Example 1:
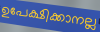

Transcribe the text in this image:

ഉപേക്ഷിക്കാനല്ല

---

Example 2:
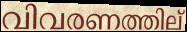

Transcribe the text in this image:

വിവരണത്തില്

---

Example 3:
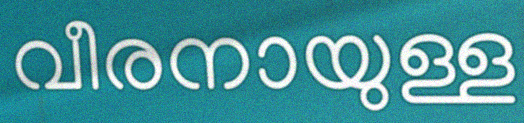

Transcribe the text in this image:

വീരനായുള്ള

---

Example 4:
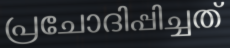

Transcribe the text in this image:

പ്രചോദിപ്പിച്ചത്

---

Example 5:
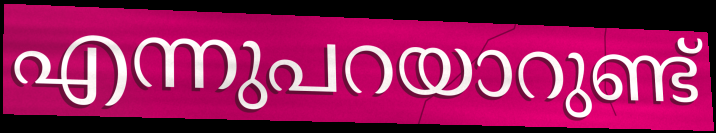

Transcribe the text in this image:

എന്നുപറയാറുണ്ട്